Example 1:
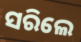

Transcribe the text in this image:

ସରିଲେ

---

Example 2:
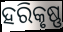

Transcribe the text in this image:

ହରିକୃଷ୍ଣ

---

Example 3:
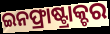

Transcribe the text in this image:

ଇନଫ୍ରାଷ୍ଟ୍ରାକ୍ଚର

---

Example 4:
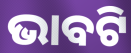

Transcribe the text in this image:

ଭାବଟି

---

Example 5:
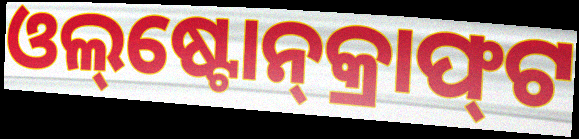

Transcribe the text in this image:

ଓଲ୍‌ଷ୍ଟୋନ୍‌କ୍ରାଫ୍‌ଟ